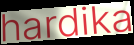
hardika